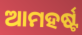
ଆମହର୍ଷ୍ଟ